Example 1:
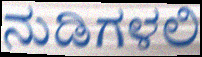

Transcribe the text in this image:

ನುಡಿಗಳಲಿ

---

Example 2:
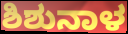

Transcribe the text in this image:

ಶಿಶುನಾಳ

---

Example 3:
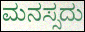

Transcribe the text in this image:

ಮನಸ್ಸದು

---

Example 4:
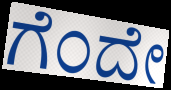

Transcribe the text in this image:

ಗೆಂದೇ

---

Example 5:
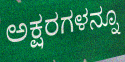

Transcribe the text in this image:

ಅಕ್ಷರಗಳನ್ನೂ